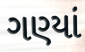
ગણ્યાં